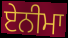
ਏਨੀਮਾ